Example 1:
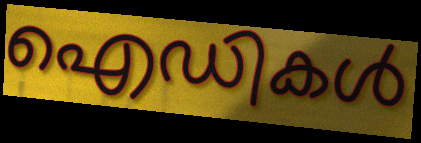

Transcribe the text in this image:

ഐഡികൾ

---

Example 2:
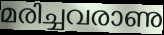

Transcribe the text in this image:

മരിച്ചവരാണു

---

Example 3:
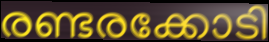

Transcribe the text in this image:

രണ്ടരക്കോടി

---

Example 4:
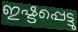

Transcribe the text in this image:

ഇഷ്ടപ്പെട്ടു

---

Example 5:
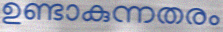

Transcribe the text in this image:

ഉണ്ടാകുന്നതരം